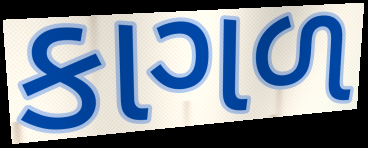
કાગળ